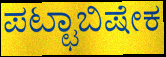
ಪಟ್ಟಾಬಿಷೇಕ